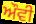
ਔਵੀ